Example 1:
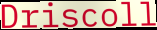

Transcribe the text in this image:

Driscoll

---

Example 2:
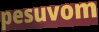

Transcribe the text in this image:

pesuvom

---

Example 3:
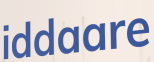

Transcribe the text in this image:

iddaare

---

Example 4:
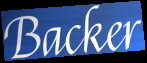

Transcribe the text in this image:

Backer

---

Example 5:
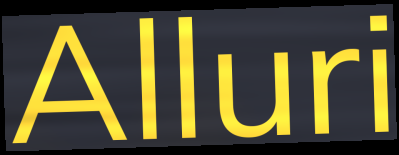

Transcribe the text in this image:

Alluri